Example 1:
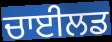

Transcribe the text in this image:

ਚਾਈਲਡ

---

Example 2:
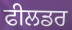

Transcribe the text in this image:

ਫੀਲਡਰ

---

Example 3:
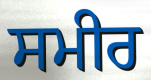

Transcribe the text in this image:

ਸਮੀਰ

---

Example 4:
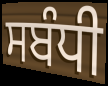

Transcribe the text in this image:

ਸਬੰਧੀ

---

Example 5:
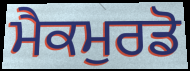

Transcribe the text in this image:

ਮੈਕਮੁਰਡੋ